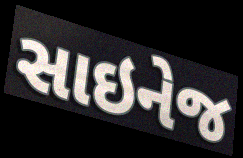
સાઇનેજ